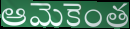
ఆమెకెంత